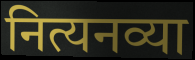
नित्यनव्या